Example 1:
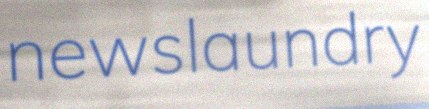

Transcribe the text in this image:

newslaundry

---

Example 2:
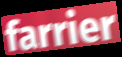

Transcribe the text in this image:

farrier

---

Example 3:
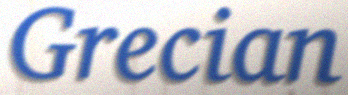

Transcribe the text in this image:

Grecian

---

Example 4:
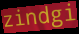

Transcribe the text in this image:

zindgi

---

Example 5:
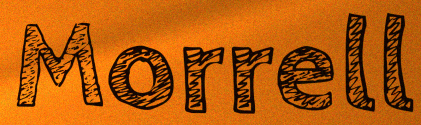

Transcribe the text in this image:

Morrell